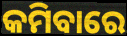
କମିବାରେ